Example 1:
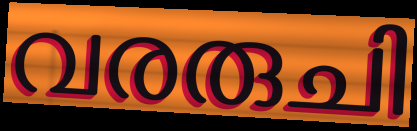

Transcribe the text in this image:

വരരുചി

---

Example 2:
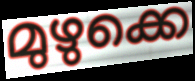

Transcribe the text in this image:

മുഴുക്കെ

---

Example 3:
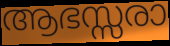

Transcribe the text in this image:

ആഭസ്സരാ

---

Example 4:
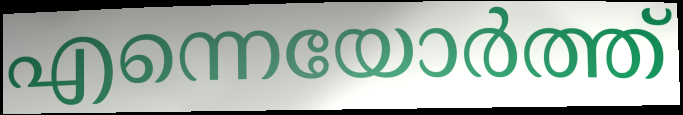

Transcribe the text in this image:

എന്നെയോർത്ത്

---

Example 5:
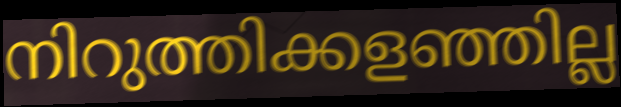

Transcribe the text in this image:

നിറുത്തിക്കളഞ്ഞില്ല